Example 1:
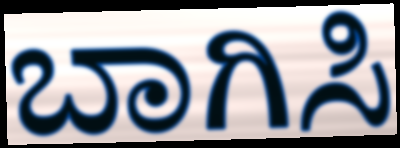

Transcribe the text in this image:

ಬಾಗಿಸಿ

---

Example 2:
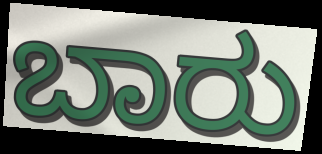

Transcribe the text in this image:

ಬಾರು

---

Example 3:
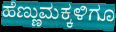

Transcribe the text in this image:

ಹೆಣ್ಣುಮಕ್ಕಳಿಗೂ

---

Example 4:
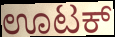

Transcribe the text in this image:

ಊಟಕ್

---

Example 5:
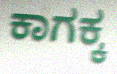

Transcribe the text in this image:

ಕಾಗಕ್ಕ